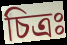
চিত্রঃ